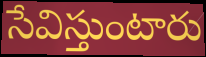
సేవిస్తుంటారు